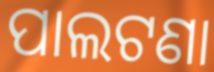
ପାଲଟଣା